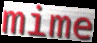
mime